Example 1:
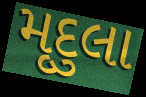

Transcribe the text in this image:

મૃદુલા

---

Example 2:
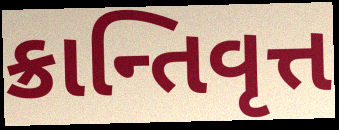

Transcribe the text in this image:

ક્રાન્તિવૃત્ત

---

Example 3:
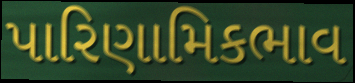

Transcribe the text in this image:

પારિણામિકભાવ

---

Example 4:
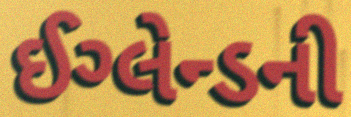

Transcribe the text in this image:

ઈગ્લેન્ડની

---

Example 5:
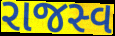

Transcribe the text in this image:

રાજસ્વ